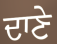
ਦਾਣੇ